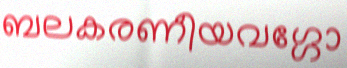
ബലകരണീയവഗ്ഗോ